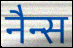
नैन्स